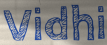
Vidhi